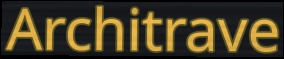
Architrave